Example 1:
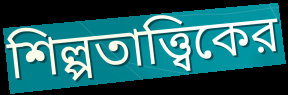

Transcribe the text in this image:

শিল্পতাত্ত্বিকের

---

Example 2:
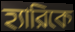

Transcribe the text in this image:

হ্যারিকে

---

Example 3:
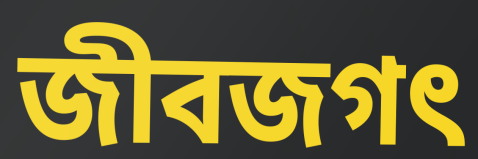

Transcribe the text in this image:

জীবজগৎ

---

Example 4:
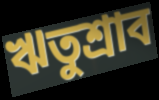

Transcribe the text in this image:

ঋতুশ্রাব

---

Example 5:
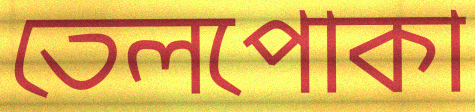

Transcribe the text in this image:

তেলপোকা